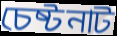
চেষ্টনাট